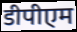
डीपीएम